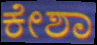
ಕೇಶಾ